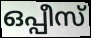
ഒപ്പീസ്